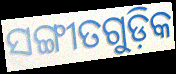
ସଙ୍ଗୀତଗୁଡ଼ିକ